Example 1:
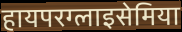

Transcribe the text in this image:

हायपरग्लाइसेमिया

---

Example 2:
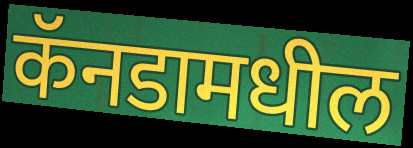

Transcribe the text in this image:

कॅनडामधील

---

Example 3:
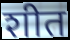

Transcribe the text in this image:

शीत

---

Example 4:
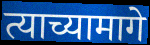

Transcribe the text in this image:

त्याच्यामागे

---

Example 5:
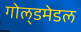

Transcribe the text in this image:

गोल्डमेडल